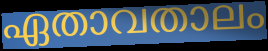
ഏതാവതാലം